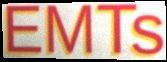
EMTs